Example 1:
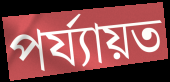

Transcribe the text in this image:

পৰ্য্যায়ত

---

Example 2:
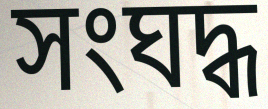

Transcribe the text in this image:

সংঘদ্ধ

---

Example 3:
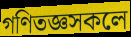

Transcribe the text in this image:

গণিতজ্ঞসকলে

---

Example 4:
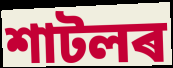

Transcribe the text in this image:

শাটলৰ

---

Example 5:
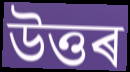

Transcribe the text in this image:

উত্তৰ